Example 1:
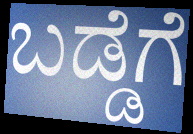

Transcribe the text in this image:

ಬಡ್ಡೆಗೆ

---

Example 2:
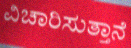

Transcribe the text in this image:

ವಿಚಾರಿಸುತ್ತಾನೆ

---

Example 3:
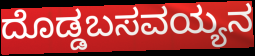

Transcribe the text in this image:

ದೊಡ್ಡಬಸವಯ್ಯನ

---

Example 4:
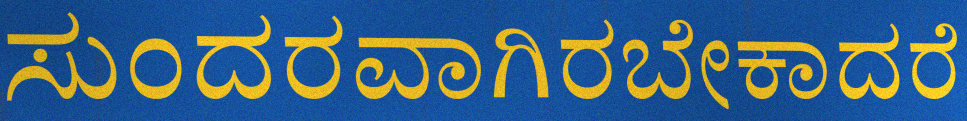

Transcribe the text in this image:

ಸುಂದರವಾಗಿರಬೇಕಾದರೆ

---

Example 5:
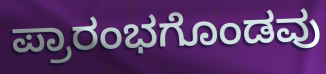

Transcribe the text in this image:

ಪ್ರಾರಂಭಗೊಂಡವು